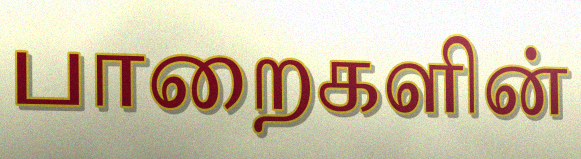
பாறைகளின்